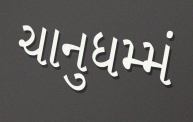
ચાનુધમ્મં